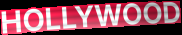
HOLLYWOOD